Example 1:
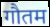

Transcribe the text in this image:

गौतम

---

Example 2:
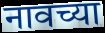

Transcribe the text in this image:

नावच्या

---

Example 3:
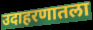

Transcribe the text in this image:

उदाहरणातला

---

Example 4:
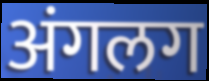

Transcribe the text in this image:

अंगलग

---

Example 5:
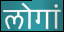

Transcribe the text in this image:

लोगां